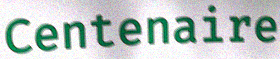
Centenaire